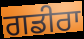
ਗਡੀਰਾ